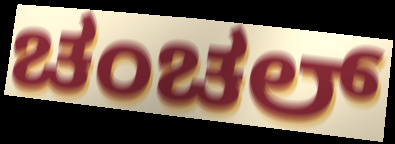
ಚಂಚಲ್